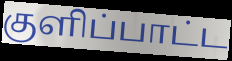
குளிப்பாட்ட